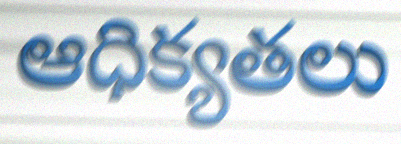
ఆధిక్యతలు